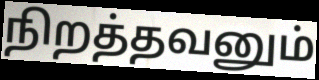
நிறத்தவனும்